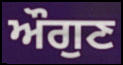
ਔਗੁਣ